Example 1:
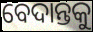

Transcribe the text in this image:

ବେଦାନ୍ତକୁ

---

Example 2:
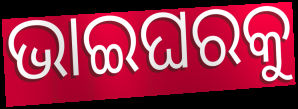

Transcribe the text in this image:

ଭାଇଘରକୁ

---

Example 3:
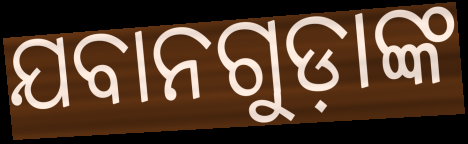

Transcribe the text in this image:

ଯବାନଗୁଡ଼ାଙ୍କ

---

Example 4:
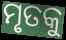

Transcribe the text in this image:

ମୃତକୁ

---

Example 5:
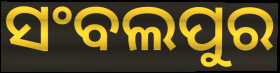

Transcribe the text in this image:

ସଂବଲପୁର